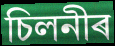
চিলনীৰ